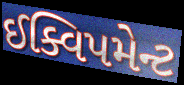
ઈક્વિપમેન્ટ